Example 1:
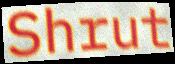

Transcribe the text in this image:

Shrut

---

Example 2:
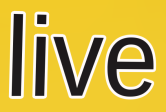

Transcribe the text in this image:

live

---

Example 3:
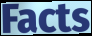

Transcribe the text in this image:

Facts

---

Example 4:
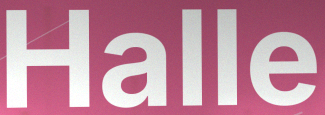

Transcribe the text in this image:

Halle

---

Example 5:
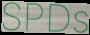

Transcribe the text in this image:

SPDs